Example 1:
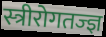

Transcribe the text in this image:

स्‍त्रीरोगतज्‍ज्ञ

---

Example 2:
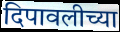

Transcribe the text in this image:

दिपावलीच्या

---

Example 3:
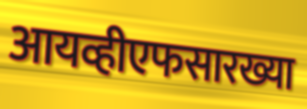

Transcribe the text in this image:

आयव्हीएफसारख्या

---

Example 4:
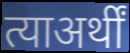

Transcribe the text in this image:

त्याअर्थीं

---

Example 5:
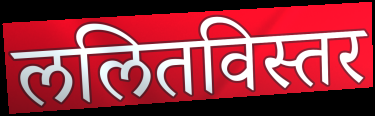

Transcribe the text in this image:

ललितविस्तर